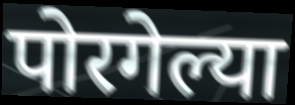
पोरगेल्या